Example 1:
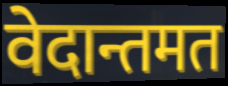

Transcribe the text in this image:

वेदान्तमत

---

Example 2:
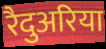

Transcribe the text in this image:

रैदुअरिया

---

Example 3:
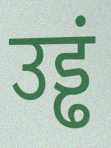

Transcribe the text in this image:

उड्ढं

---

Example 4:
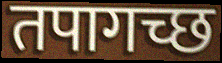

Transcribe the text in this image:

तपागच्छ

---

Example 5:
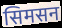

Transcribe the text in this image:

सिमसन